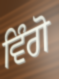
ਵਿੰਗੋ